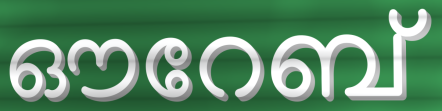
ഔറേബ്